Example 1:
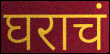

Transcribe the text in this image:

घराचं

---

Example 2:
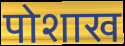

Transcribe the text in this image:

पोशाख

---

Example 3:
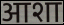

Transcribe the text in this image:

आशा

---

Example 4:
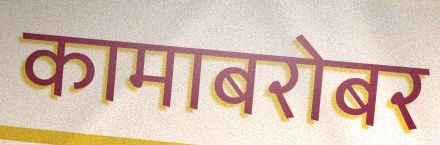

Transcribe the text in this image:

कामाबरोबर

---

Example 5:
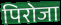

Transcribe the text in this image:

पिरोजा